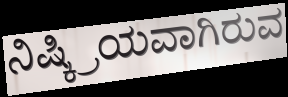
ನಿಷ್ಕ್ರಿಯವಾಗಿರುವ